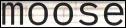
moose